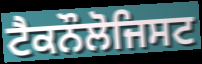
ਟੈਕਨੌਲੋਜਿਸਟ